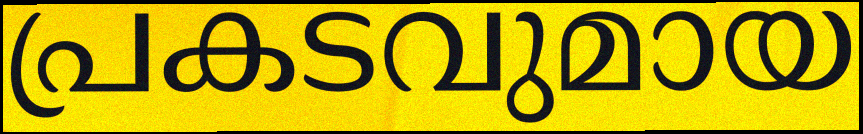
പ്രകടവുമായ